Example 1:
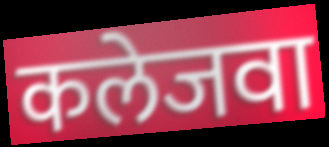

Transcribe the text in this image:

कलेजवा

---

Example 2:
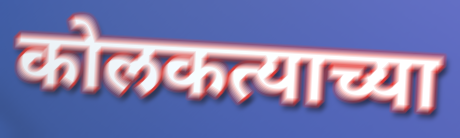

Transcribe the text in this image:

कोलकत्याच्या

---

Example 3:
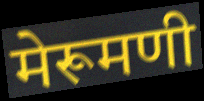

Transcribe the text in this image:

मेरूमणी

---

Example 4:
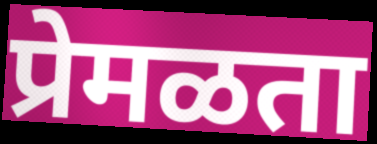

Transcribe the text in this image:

प्रेमळता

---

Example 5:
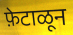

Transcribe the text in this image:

फ़ेटाळून